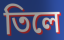
তিলে